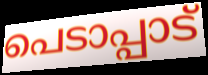
പെടാപ്പാട്